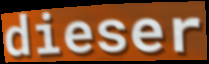
dieser